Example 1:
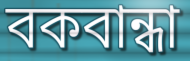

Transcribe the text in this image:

বকবান্ধা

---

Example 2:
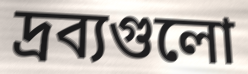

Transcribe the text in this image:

দ্রব্যগুলো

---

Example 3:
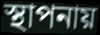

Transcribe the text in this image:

স্থাপনায়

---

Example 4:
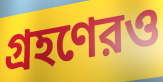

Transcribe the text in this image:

গ্রহণেরও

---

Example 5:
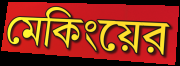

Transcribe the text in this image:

মেকিংয়ের